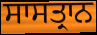
ਸਾਸਤ੍ਰਾਨ